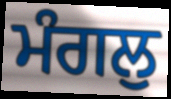
ਮੰਗਲੁ